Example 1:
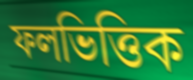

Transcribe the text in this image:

ফলভিত্তিক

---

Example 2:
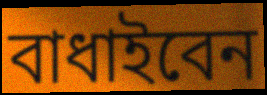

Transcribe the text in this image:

বাধাইবেন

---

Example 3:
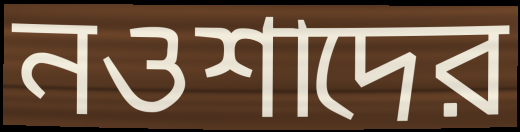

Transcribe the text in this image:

নওশাদের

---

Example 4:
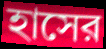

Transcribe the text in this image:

হাসের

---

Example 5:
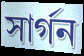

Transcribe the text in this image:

সার্গন